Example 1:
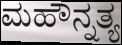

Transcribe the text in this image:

ಮಹೌನ್ನತ್ಯ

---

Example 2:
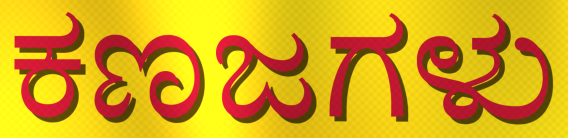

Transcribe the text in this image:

ಕಣಜಗಳು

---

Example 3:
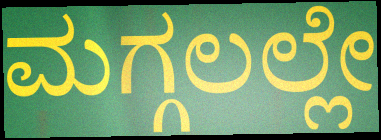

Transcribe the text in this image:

ಮಗ್ಗಲಲ್ಲೇ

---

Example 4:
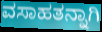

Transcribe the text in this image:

ವಸಾಹತನ್ನಾಗಿ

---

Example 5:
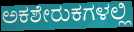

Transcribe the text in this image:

ಅಕಶೇರುಕಗಳಲ್ಲಿ